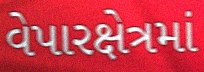
વેપારક્ષેત્રમાં